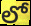
లో